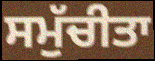
ਸਮੁੱਚੀਤਾ